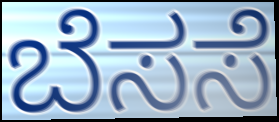
ಬೆಸಸೆ